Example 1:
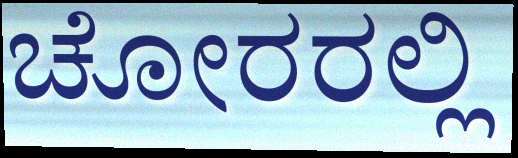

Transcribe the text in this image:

ಚೋರರಲ್ಲಿ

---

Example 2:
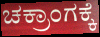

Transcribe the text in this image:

ಚಕ್ರಾಂಗಕ್ಕೆ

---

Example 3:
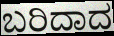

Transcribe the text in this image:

ಬರಿದಾದ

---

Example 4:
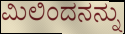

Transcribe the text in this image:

ಮಿಲಿಂದನನ್ನು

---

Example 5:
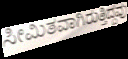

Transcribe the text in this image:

ಸೀಮಿತವಾಗಿರುತ್ತಿದ್ದವು